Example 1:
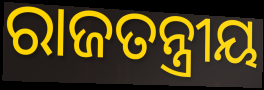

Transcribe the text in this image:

ରାଜତନ୍ତ୍ରୀୟ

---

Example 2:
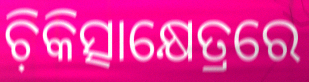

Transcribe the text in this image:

ଚ଼ିକିତ୍ସାକ୍ଷେତ୍ରରେ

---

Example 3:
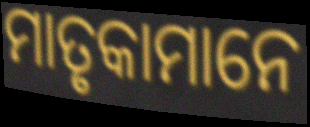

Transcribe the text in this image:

ମାତୃକାମାନେ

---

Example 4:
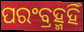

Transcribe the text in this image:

ପରଂବ୍ରହ୍ମହିଁ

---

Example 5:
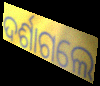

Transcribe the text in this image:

ଦର୍ଶାଗଲେ